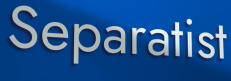
Separatist